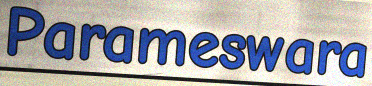
Parameswara